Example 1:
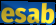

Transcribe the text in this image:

esab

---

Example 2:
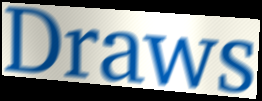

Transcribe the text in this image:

Draws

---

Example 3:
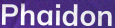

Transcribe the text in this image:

Phaidon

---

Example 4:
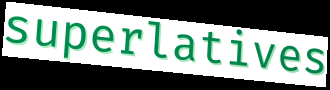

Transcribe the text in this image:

superlatives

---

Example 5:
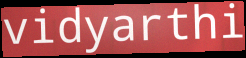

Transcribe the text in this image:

vidyarthi